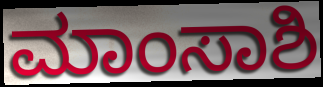
ಮಾಂಸಾಶಿ